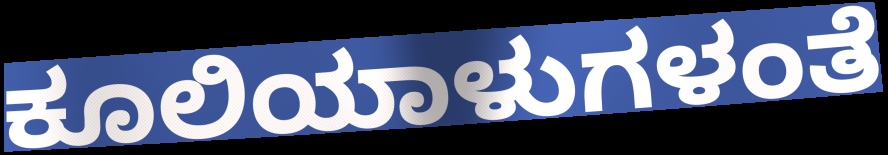
ಕೂಲಿಯಾಳುಗಳಂತೆ